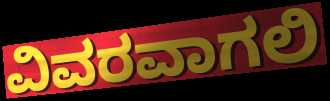
ವಿವರವಾಗಲಿ